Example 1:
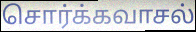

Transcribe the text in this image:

சொர்க்கவாசல்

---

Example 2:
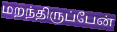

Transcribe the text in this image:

மறந்திருப்பேன்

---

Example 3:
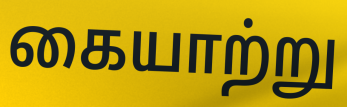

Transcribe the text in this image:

கையாற்று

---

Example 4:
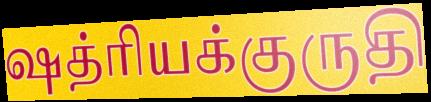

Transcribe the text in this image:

ஷத்ரியக்குருதி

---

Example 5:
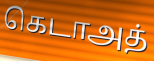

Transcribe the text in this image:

கெடாஅத்